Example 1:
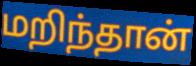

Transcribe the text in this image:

மறிந்தான்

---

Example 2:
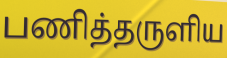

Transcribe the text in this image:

பணித்தருளிய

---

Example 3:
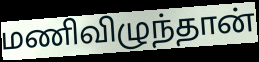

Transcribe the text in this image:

மணிவிழுந்தான்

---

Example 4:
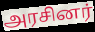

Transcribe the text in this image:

அரசினர்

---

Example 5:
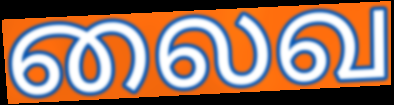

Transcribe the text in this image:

லைவ